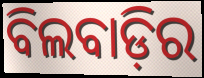
ବିଲବାଡ଼ିର